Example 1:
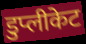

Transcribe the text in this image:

डुप्‍लीकेट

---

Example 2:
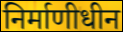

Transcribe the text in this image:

निर्माणीधीन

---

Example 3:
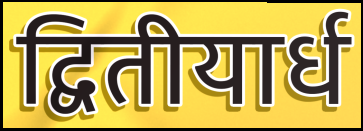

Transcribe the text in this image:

द्वितीयार्ध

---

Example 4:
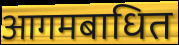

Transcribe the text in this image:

आगमबाधित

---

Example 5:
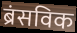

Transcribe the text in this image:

ब्रंसविक